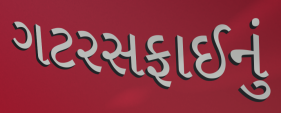
ગટરસફાઈનું